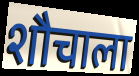
शौचाला